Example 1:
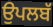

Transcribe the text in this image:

ਉਪਲਬੱ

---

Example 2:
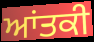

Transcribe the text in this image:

ਆਂਤਕੀ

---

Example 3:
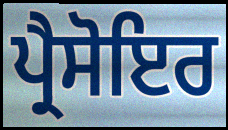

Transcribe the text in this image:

ਪ੍ਰੈਸੋਇਰ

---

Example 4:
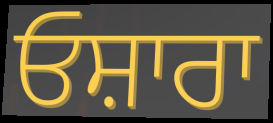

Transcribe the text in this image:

ਓਸ਼ਾਰਾ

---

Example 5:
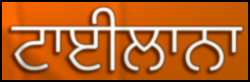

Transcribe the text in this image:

ਟਾਈਲਾਨਾ